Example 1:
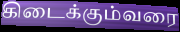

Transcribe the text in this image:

கிடைக்கும்வரை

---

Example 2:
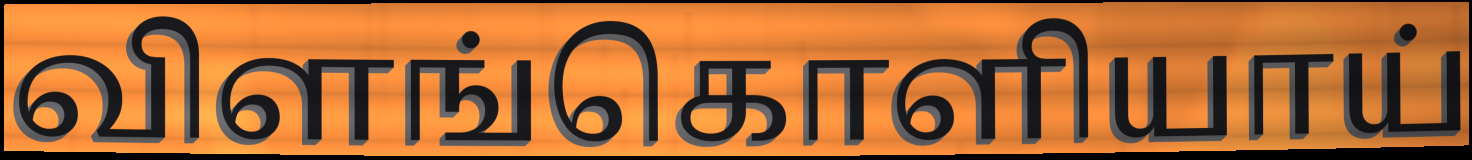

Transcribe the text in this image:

விளங்கொளியாய்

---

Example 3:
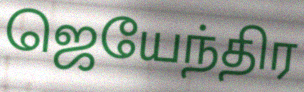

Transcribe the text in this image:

ஜெயேந்திர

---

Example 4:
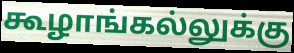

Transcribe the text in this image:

கூழாங்கல்லுக்கு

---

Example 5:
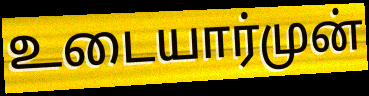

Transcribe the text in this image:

உடையார்முன்